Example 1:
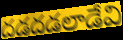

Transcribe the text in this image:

దడదడలాడేవి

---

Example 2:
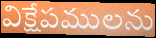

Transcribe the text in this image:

విక్షేపములను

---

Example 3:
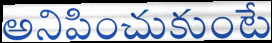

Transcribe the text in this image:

అనిపించుకుంటే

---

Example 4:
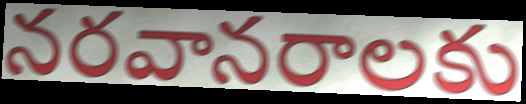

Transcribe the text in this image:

నరవానరాలకు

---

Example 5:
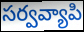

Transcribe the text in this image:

సర్వవ్యాపి